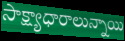
సాక్ష్యాధారాలున్నాయి